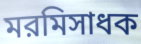
মরমিসাধক